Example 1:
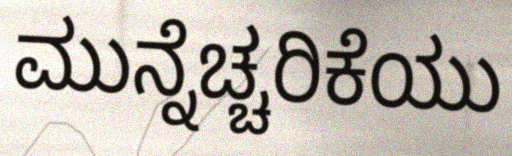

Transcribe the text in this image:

ಮುನ್ನೆಚ್ಚರಿಕೆಯು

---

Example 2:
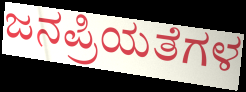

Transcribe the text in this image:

ಜನಪ್ರಿಯತೆಗಳ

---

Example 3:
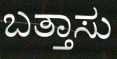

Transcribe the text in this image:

ಬತ್ತಾಸು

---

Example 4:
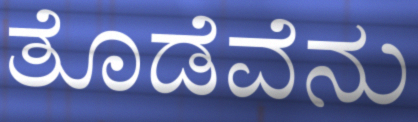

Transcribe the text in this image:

ತೊಡೆವೆನು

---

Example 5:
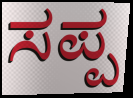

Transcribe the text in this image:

ಸಪ್ಪ